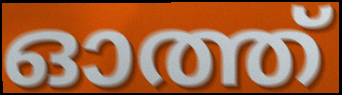
ഓത്ത്